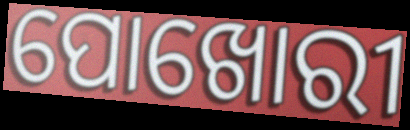
ପୋଖୋରୀ